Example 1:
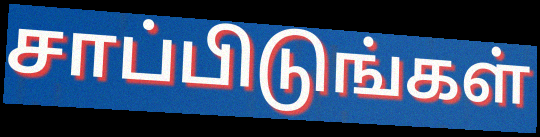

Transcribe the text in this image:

சாப்பிடுங்கள்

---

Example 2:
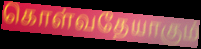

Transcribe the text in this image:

கொள்வதேயாகும்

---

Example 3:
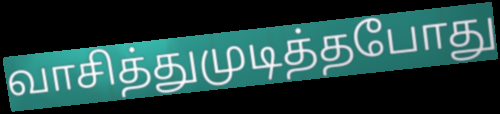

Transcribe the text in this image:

வாசித்துமுடித்தபோது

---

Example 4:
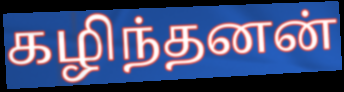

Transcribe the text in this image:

கழிந்தனன்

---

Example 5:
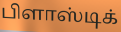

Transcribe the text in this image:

பிளாஸ்டிக்